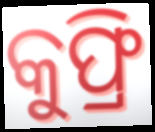
କୁଫ୍ରି